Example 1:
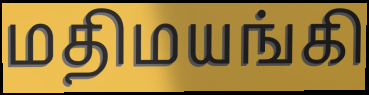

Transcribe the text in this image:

மதிமயங்கி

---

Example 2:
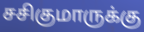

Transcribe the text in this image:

சசிகுமாருக்கு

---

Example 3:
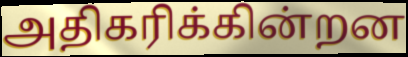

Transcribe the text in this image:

அதிகரிக்கின்றன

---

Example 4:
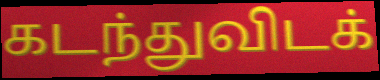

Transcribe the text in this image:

கடந்துவிடக்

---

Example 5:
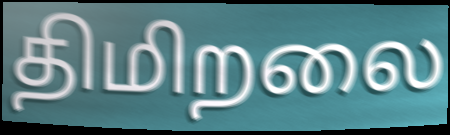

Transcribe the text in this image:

திமிறலை